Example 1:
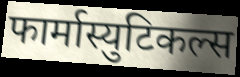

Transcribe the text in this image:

फार्मास्युटिकल्स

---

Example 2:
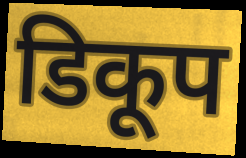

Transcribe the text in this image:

डिकूप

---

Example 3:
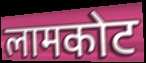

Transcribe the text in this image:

लामकोट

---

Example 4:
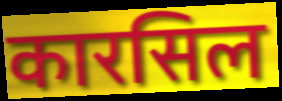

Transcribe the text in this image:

कारसिल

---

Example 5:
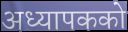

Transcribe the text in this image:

अध्यापकको